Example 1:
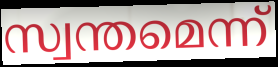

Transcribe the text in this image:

സ്വന്തമെന്ന്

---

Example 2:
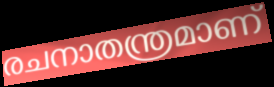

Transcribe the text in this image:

രചനാതന്ത്രമാണ്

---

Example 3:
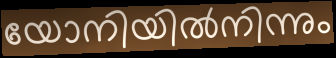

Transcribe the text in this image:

യോനിയിൽനിന്നും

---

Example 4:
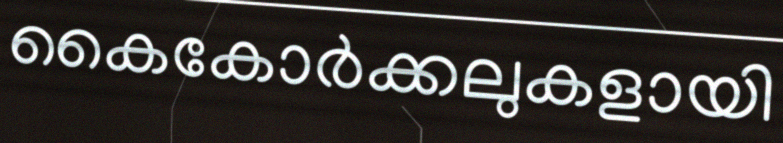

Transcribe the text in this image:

കൈകോർക്കലുകളായി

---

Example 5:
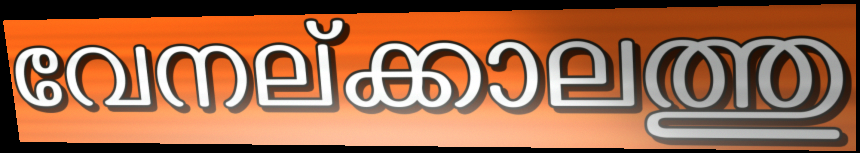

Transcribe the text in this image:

വേനല്ക്കാലത്തു